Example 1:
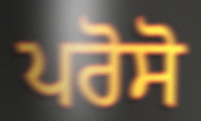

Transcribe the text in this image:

ਪਰੋਸੋ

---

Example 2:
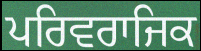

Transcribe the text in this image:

ਪਰਿਵਰਾਜਿਕ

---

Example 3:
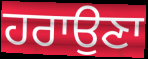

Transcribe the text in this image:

ਹਰਾਉਣਾ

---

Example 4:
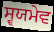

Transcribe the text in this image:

ਸ੍ਵਯਮੇਵ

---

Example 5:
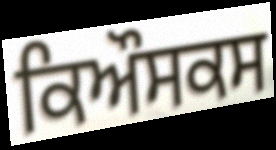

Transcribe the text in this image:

ਕਿਔਸਕਸ